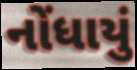
નોંધાયું